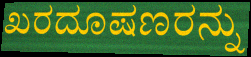
ಖರದೂಷಣರನ್ನು